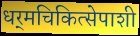
धर्मचिकित्सेपाशी